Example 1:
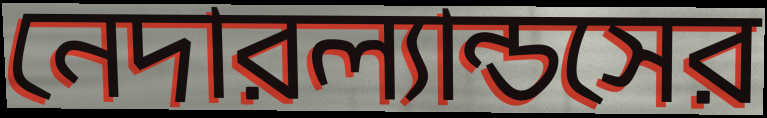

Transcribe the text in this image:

নেদারল্যান্ডসের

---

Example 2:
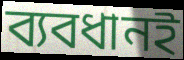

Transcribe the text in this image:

ব্যবধানই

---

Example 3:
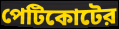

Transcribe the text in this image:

পেটিকোটের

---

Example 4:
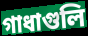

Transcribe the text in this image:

গাধাগুলি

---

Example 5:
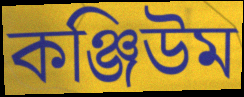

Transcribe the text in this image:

কঞ্জিউম